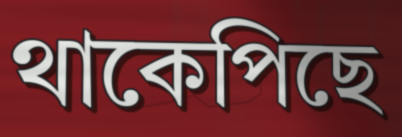
থাকেপিছে